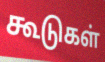
கூடுகள்